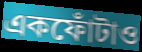
একফোঁটাও